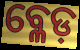
ବ୍ଳେଡ଼